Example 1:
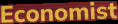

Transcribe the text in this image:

Economist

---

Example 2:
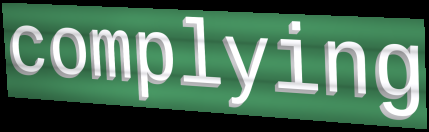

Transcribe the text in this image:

complying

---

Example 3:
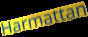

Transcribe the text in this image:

Harmattan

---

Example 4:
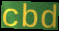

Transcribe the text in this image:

cbd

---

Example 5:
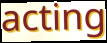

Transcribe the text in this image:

acting